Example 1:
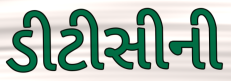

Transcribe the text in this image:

ડીટીસીની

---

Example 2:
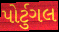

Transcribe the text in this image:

પોર્ટુગલ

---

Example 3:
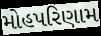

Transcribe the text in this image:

મોહપરિણામ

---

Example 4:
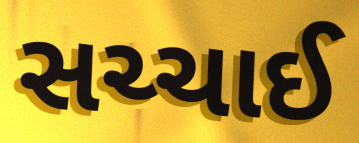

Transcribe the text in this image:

સચ્ચાઈ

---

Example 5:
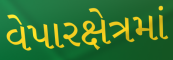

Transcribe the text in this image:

વેપારક્ષેત્રમાં